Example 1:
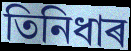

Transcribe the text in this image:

তিনিধাৰ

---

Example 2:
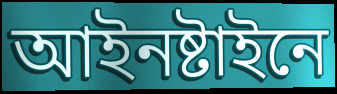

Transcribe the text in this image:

আইনষ্টাইনে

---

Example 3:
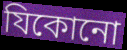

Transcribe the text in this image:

যিকোনো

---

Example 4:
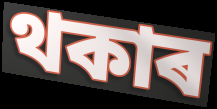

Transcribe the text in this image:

থকাৰ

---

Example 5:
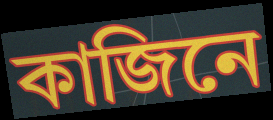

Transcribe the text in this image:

কাজিনে